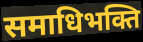
समाधिभक्ति